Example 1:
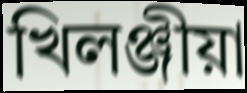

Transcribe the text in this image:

খিলঞ্জীয়া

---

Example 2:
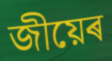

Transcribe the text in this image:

জীয়েৰ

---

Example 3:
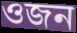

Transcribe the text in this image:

ওজন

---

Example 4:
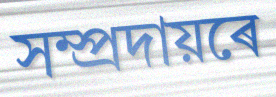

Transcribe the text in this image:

সম্প্ৰদায়ৰে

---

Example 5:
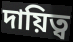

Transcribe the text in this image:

দায়িত্ব